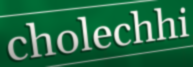
cholechhi